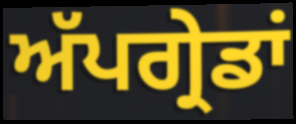
ਅੱਪਗ੍ਰੇਡਾਂ